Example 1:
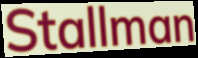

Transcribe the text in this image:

Stallman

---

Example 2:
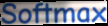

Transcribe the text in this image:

Softmax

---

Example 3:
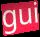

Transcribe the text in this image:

gui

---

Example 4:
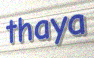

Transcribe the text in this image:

thaya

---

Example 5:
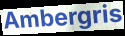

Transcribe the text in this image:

Ambergris